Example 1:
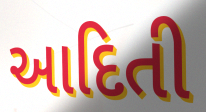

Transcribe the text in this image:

આદિતી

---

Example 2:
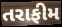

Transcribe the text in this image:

તરાફીમ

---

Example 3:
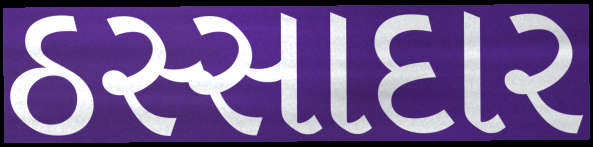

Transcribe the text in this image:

ઠસ્સાદાર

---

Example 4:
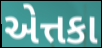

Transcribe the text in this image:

એત્તકા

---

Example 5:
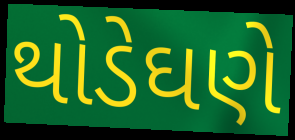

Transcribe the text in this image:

થોડેઘણે